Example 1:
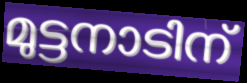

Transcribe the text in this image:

മുട്ടനാടിന്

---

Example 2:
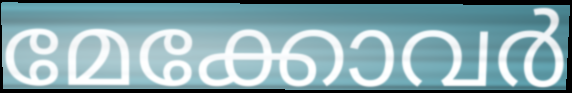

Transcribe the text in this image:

മേക്കോവർ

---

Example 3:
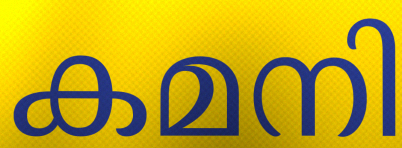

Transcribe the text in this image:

കമനി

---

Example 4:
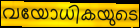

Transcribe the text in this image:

വയോധികയുടെ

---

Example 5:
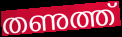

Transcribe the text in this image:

തണുത്ത്